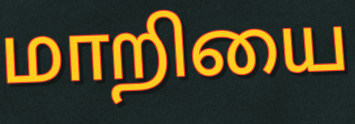
மாறியை